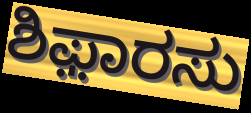
ಶಿಫ಼ಾರಸು